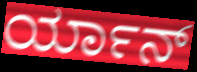
ರ್ಯಾನ್